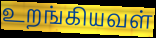
உறங்கியவள்